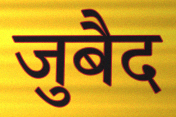
जुबैद